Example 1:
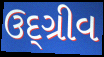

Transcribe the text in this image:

ઉદ્ગ્રીવ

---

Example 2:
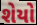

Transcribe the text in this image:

શેયો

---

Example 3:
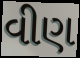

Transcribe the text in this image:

વીણ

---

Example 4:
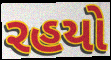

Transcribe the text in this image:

રહયો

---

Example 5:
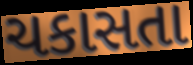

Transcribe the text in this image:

ચકાસતા